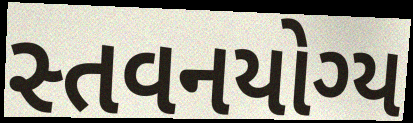
સ્તવનયોગ્ય